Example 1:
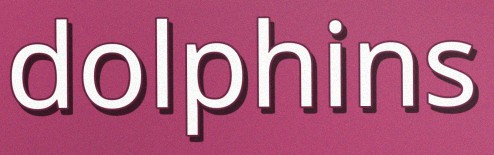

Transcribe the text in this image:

dolphins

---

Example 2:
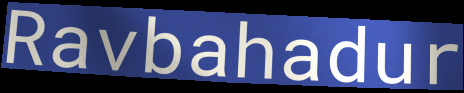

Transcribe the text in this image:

Ravbahadur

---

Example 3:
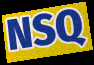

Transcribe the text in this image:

NSQ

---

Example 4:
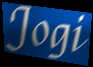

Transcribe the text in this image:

Jogi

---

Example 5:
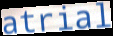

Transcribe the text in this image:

atrial